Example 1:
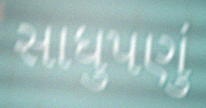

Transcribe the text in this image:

સાધુપણું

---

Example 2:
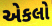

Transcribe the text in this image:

એકલો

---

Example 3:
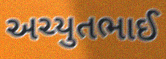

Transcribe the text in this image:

અચ્યુતભાઈ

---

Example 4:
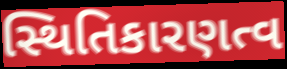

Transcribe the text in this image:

સ્થિતિકારણત્વ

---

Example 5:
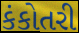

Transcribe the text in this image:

કંકોતરી